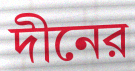
দীনের